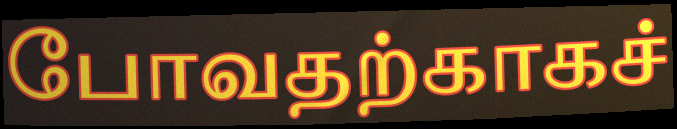
போவதற்காகச்